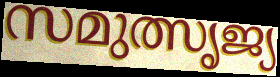
സമുത്സൃജ്യ